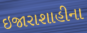
ઇજારાશાહીના